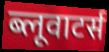
ब्लूवाटर्स